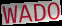
WADO